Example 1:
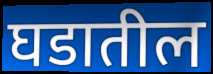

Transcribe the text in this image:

घडातील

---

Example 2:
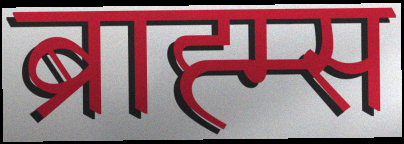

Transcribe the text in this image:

ब्राह्म्स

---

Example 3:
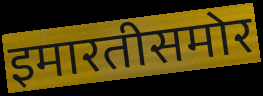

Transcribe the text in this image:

इमारतीसमोर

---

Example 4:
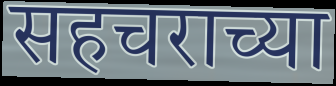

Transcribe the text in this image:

सहचराच्या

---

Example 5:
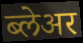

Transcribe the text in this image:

ब्लेअर